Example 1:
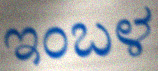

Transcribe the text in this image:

ಇಂಬಳ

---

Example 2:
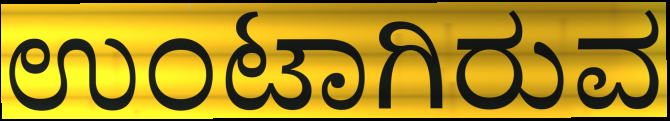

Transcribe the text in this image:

ಉಂಟಾಗಿರುವ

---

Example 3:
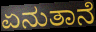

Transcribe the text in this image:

ಏನುತಾನೆ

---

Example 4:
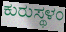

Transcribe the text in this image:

ಕುರುಸ್ಥಳಂ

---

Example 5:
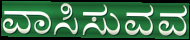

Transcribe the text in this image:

ವಾಸಿಸುವವ